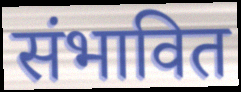
संभावित